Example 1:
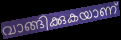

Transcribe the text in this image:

വാങ്ങിക്കുകയാണ്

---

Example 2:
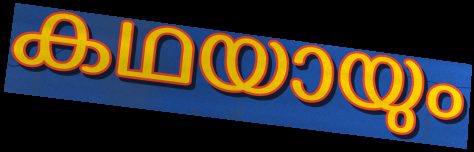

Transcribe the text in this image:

കഥയായും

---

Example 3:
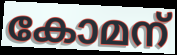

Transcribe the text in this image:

കോമന്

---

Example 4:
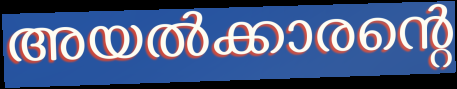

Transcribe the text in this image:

അയൽക്കാരന്റെ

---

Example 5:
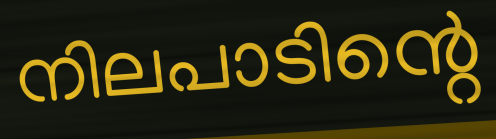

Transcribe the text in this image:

നിലപാടിന്റെ